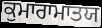
ਕੁਮਾਰਾਮਾਤਯ